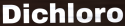
Dichloro